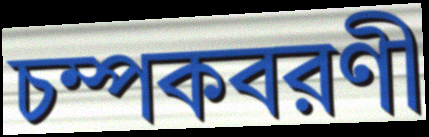
চম্পকবরণী